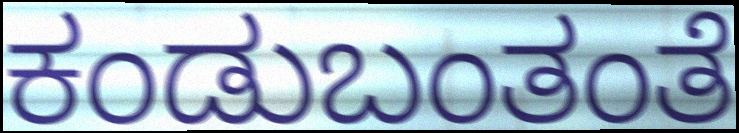
ಕಂಡುಬಂತಂತೆ